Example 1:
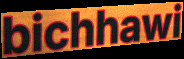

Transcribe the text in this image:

bichhawi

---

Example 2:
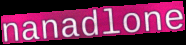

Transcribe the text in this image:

nanadlone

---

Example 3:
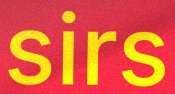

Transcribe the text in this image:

sirs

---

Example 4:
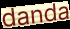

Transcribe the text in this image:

danda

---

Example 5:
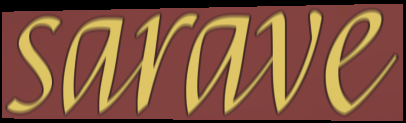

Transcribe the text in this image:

sarave